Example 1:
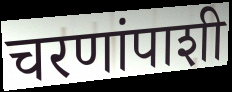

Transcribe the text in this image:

चरणांपाशी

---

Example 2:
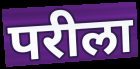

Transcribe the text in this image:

परीला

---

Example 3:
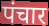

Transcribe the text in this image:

पंचार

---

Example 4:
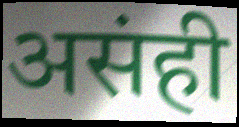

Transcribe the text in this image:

असंही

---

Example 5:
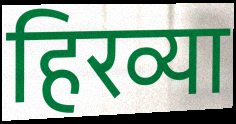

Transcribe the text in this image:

हिरव्या